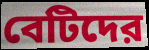
বেটিদের